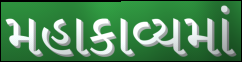
મહાકાવ્યમાં